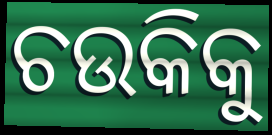
ଚଉକିକୁ